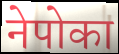
नेपोका